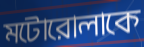
মটোরোলাকে